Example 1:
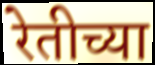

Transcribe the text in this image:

रेतीच्या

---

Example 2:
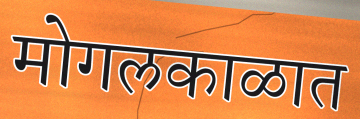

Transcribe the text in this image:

मोगलकाळात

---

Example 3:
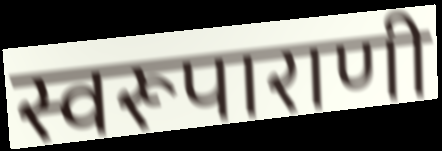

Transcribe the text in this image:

स्वरूपाराणी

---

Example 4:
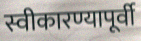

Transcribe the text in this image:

स्वीकारण्यापूर्वी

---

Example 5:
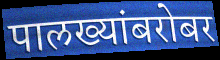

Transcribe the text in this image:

पालख्यांबरोबर